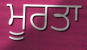
ਮੂਰਤਾ